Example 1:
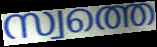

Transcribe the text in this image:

സ്വത്തെ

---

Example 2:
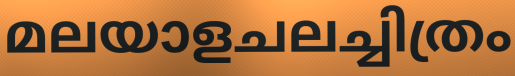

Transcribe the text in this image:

മലയാളചലച്ചിത്രം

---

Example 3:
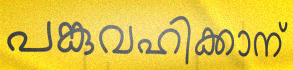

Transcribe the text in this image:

പങ്കുവഹിക്കാന്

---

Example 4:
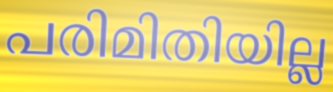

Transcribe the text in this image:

പരിമിതിയില്ല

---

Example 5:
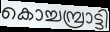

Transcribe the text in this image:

കൊച്ചമ്പ്രാട്ടി